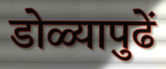
डोळ्यापुढें